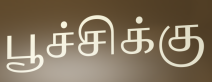
பூச்சிக்கு